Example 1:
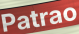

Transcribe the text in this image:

Patrao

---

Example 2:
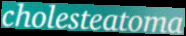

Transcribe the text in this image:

cholesteatoma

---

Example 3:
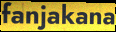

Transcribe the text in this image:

fanjakana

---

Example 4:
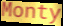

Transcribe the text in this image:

Monty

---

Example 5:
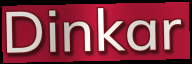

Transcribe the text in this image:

Dinkar